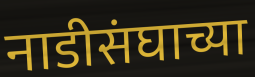
नाडीसंघाच्या